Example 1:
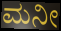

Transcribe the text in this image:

ಮನೀ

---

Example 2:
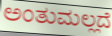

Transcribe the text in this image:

ಅಂತುಮಲ್ಲದೆ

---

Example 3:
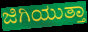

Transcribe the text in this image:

ಜಿಗಿಯುತ್ತಾ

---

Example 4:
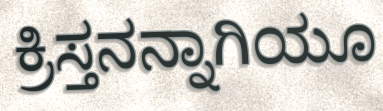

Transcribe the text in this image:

ಕ್ರಿಸ್ತನನ್ನಾಗಿಯೂ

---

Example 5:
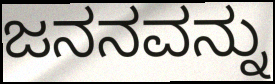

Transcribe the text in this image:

ಜನನವನ್ನು